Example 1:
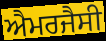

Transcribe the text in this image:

ਐਮਰਜੈਸੀ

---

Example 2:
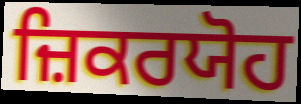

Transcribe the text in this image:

ਜ਼ਿਕਰਯੋਹ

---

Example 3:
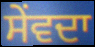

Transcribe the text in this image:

ਸੇਂਵਦਾ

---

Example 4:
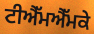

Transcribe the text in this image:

ਟੀਐੱਮਐੱਮਕੇ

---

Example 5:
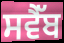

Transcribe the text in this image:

ਸਵੈੱਬ